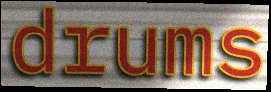
drums